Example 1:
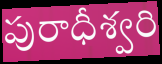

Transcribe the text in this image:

పురాధీశ్వరి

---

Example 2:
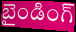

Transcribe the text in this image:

బైండింగ్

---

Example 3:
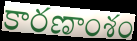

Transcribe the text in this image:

కారణాంశం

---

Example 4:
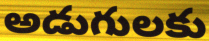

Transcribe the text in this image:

అడుగులకు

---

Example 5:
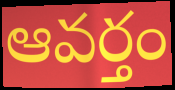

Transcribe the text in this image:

ఆవర్తం